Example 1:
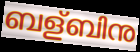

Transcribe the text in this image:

ബള്ബിനു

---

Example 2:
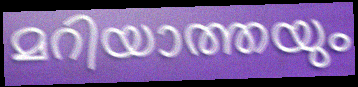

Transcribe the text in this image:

മറിയാത്തയും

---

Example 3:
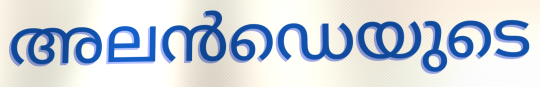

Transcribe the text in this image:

അലൻഡെയുടെ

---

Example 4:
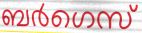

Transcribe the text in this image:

ബർഗെസ്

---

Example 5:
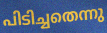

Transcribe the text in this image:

പിടിച്ചതെന്നു